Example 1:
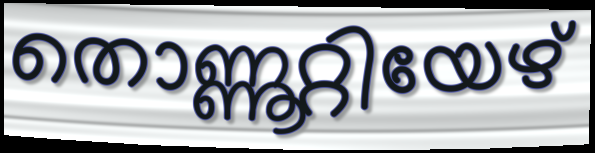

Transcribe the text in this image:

തൊണ്ണൂറ്റിയേഴ്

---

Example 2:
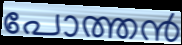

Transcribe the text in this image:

പോത്തൻ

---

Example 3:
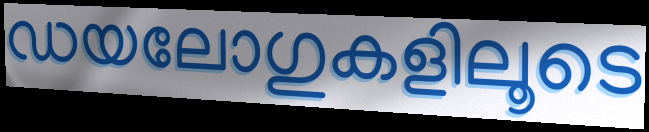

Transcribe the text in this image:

ഡയലോഗുകളിലൂടെ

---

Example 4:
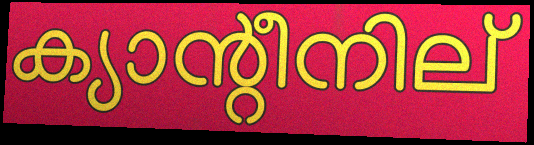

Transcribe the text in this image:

ക്യാന്റീനില്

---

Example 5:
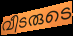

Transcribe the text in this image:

വീടരുടെ